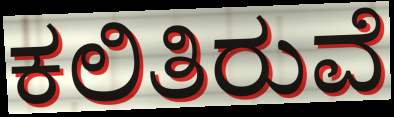
ಕಲಿತಿರುವೆ